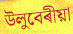
উলুবেৰীয়া